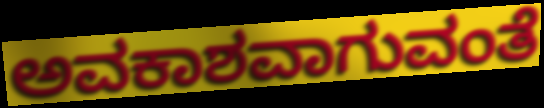
ಅವಕಾಶವಾಗುವಂತೆ